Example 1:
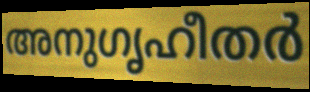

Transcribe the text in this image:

അനുഗൃഹീതർ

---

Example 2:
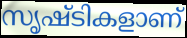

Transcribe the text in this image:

സൃഷ്ടികളാണ്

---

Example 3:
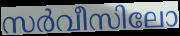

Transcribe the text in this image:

സർവീസിലോ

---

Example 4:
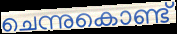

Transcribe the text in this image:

ചെന്നുകൊണ്ട്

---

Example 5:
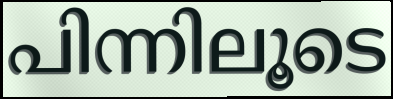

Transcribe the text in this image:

പിന്നിലൂടെ